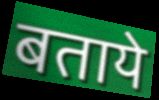
बताये